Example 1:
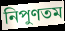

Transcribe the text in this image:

নিপুণতম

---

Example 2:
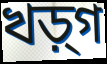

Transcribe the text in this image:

খড়্‌গ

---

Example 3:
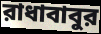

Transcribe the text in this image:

রাধাবাবুর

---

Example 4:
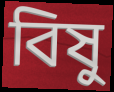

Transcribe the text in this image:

বিষু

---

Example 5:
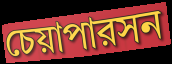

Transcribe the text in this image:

চেয়াপারসন